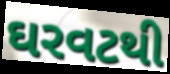
ઘરવટથી